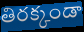
తిరక్కండా